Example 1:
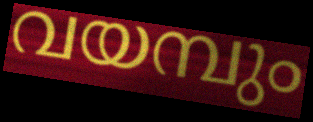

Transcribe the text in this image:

വയമ്പും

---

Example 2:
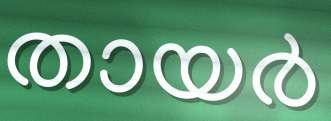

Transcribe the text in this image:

തായർ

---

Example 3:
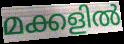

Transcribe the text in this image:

മക്കളിൽ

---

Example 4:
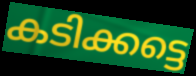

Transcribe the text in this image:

കടിക്കട്ടെ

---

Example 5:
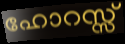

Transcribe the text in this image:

ഹോറസ്സ്